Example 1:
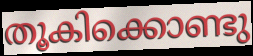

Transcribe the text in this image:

തൂകിക്കൊണ്ടു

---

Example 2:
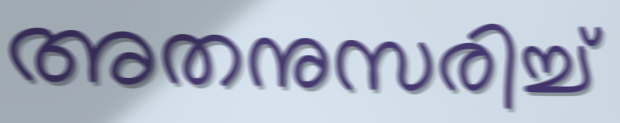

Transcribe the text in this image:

അതനുസരിച്ച്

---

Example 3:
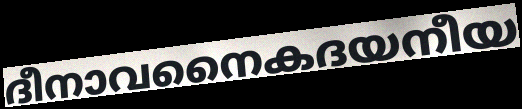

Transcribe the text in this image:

ദീനാവനൈകദയനീയ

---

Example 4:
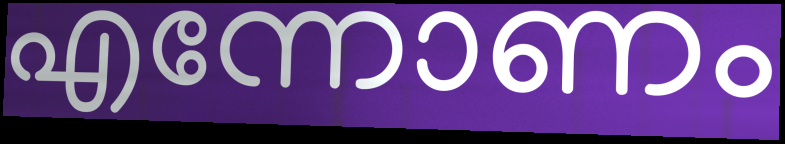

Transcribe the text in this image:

എന്നോണം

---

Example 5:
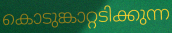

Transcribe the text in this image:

കൊടുങ്കാറ്റടിക്കുന്ന